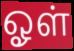
ஓள்